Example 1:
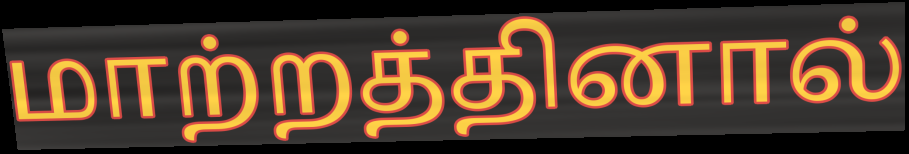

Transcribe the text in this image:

மாற்றத்தினால்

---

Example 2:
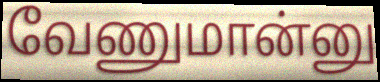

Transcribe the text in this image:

வேணுமான்னு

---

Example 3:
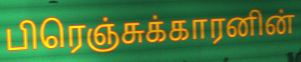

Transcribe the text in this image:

பிரெஞ்சுக்காரனின்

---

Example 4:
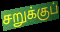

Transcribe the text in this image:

சறுக்குப்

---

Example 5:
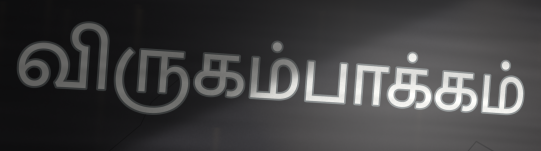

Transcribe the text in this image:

விருகம்பாக்கம்